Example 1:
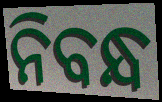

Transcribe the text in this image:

ନିବନ୍ଧ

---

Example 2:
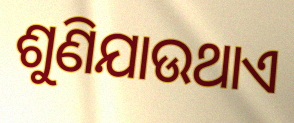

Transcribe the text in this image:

ଶୁଣିଯାଉଥାଏ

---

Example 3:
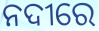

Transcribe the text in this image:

ନଦୀରେ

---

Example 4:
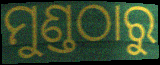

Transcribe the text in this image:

ମୁଣ୍ଡଠାରୁ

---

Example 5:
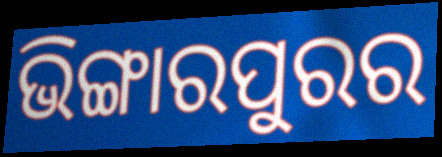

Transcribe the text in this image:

ଭିଙ୍ଗାରପୁରର